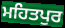
ਮਹਿਤਪੁਰ